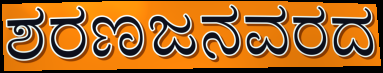
ಶರಣಜನವರದ